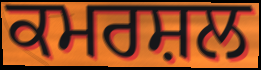
ਕਮਰਸ਼ਲ